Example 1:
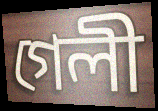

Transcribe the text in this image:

গেলী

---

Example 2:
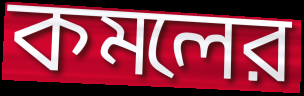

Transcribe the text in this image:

কমলের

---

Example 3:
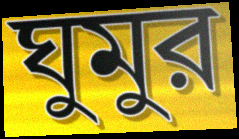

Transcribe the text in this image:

ঘুমুর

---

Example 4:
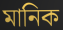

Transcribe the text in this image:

মানিক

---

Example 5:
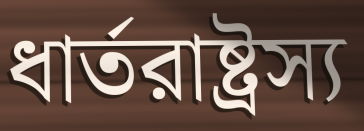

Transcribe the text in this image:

ধার্তরাষ্ট্রস্য